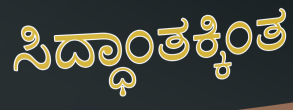
ಸಿದ್ಧಾಂತಕ್ಕಿಂತ